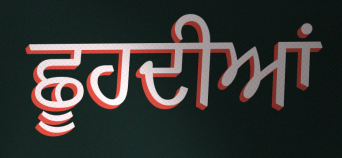
ਛੂਹਦੀਆਂ